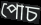
পোচ